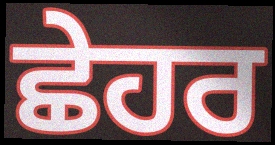
ਛੇਹਰ